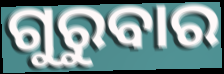
ଗୁରୁବାର